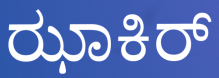
ಝಾಕಿರ್